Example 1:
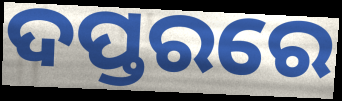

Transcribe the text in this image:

ଦପ୍ତରରେ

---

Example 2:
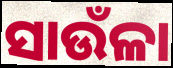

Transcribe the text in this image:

ସାଉଁଳା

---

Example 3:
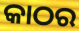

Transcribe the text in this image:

କାଠର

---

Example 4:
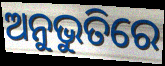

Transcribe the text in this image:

ଅନୁଭୁତିରେ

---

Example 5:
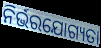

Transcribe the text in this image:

ନିର୍ଭରଯୋଗ୍ୟତା